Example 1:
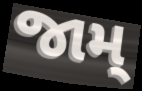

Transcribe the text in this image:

જામ્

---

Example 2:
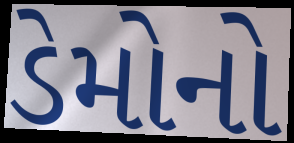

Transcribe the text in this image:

ડેમોનો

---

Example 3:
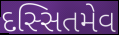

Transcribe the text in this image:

દસ્સિતમેવ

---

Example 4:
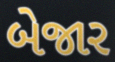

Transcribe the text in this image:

બેજાર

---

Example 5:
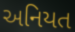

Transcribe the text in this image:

અનિયત